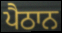
ਪੈਠਾਨ